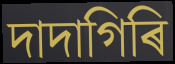
দাদাগিৰি